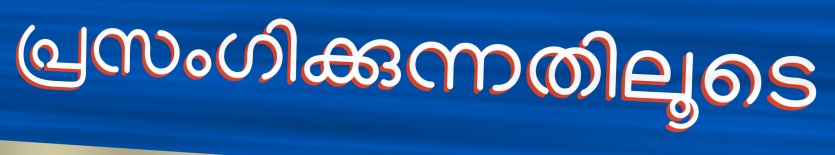
പ്രസംഗിക്കുന്നതിലൂടെ